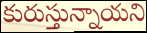
కురుస్తున్నాయని